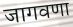
जागवणा